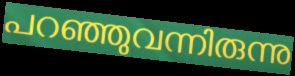
പറഞ്ഞുവന്നിരുന്നു